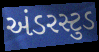
અંડરસ્ટુડ